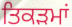
ਤਿਕੜਮਾਂ